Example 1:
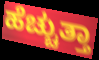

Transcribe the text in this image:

ಹೆಚ್ಚುತ್ತಾ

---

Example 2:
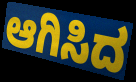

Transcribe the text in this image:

ಆಗಿಸಿದ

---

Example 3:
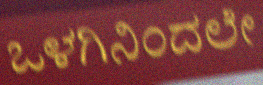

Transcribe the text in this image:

ಒಳಗಿನಿಂದಲೇ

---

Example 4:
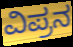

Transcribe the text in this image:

ವಿಪ್ರನ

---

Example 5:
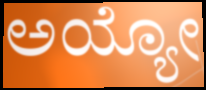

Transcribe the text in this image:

ಅಯ್ಯೋ